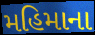
મહિમાના